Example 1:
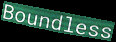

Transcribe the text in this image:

Boundless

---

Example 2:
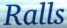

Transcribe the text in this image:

Ralls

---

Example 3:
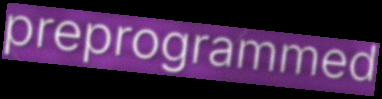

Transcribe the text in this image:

preprogrammed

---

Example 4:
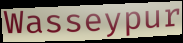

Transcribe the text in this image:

Wasseypur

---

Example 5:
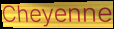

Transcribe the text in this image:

Cheyenne